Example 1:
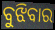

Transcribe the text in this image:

ବୁଝିବାର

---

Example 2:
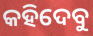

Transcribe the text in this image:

କହିଦେବୁ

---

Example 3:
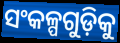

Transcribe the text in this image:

ସଂକଳ୍ପଗୁଡ଼ିକୁ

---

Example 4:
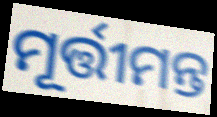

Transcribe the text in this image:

ମୂର୍ତ୍ତୀମନ୍ତ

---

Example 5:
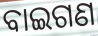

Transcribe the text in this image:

ବାଇଗଣ